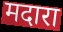
मदारा